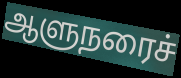
ஆளுநரைச்